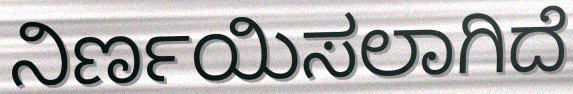
ನಿರ್ಣಯಿಸಲಾಗಿದೆ